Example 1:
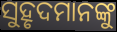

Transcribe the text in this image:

ସୁହୃଦମାନଙ୍କୁ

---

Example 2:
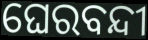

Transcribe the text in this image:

ଘେରବନ୍ଦୀ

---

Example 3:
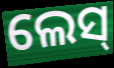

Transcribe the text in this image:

ଲେସ୍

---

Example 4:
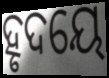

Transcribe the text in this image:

ହୃଦୟେ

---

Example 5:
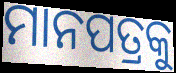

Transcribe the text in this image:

ମାନପତ୍ରକୁ